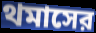
থমাসের